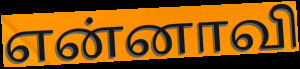
என்னாவி